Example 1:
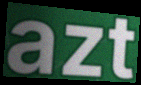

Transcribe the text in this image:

azt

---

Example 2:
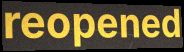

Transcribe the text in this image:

reopened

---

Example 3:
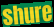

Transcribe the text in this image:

shure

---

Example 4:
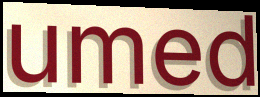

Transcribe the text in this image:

umed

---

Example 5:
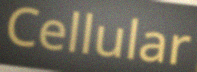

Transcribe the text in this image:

Cellular